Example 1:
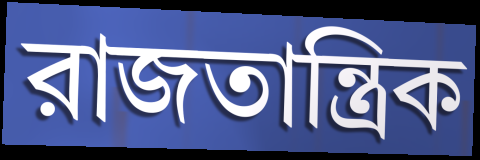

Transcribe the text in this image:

রাজতান্ত্রিক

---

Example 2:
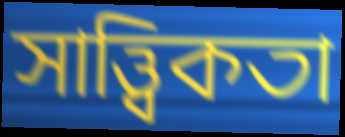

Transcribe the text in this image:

সাত্ত্বিকতা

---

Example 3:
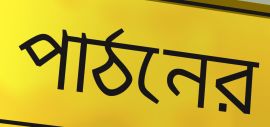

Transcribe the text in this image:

পাঠনের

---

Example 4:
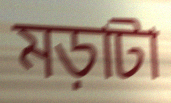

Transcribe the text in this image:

মড়াটা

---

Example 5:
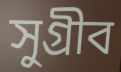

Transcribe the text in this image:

সুগ্রীব